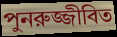
পুনরুজ্জীবিত